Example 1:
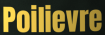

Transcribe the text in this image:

Poilievre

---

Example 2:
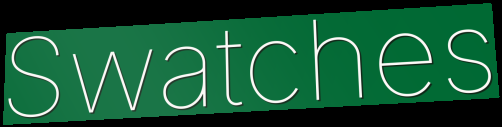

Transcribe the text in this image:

Swatches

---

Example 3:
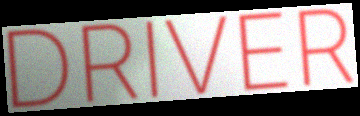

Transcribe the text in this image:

DRIVER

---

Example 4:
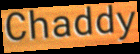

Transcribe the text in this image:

Chaddy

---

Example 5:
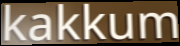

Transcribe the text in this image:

kakkum